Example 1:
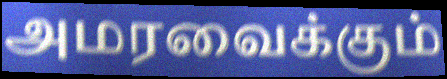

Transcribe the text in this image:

அமரவைக்கும்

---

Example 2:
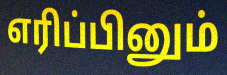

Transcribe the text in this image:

எரிப்பினும்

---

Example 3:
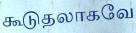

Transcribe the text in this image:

கூடுதலாகவே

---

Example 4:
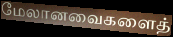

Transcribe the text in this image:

மேலானவைகளைத்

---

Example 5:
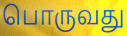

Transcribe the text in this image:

பொருவது